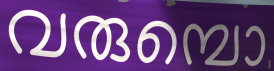
വരുമ്പൊ